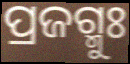
ପ୍ରଜଗ୍ମୁଃ